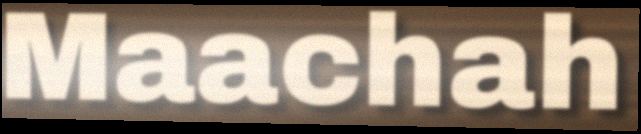
Maachah